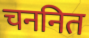
चननित